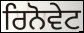
ਰਿਨੋਵੇਟ